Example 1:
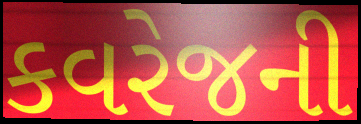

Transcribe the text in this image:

કવરેજની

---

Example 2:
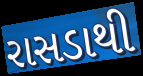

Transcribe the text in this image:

રાસડાથી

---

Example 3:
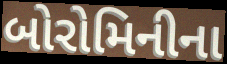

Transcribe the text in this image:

બોરોમિનીના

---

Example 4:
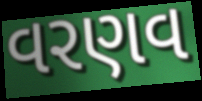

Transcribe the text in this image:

વરણવ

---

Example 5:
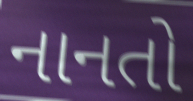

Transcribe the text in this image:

નાનતો